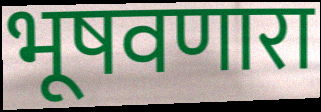
भूषवणारा